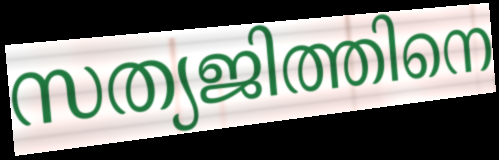
സത്യജിത്തിനെ